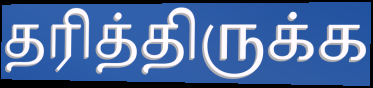
தரித்திருக்க